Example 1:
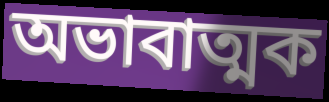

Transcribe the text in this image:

অভাবাত্মক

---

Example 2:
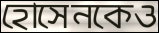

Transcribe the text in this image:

হোসেনকেও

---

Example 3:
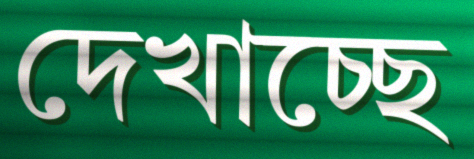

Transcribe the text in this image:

দেখাচ্ছে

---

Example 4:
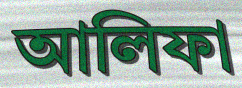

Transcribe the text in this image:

আলিফা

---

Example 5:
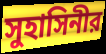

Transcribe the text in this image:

সুহাসিনীর